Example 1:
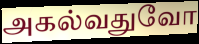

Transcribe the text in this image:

அகல்வதுவோ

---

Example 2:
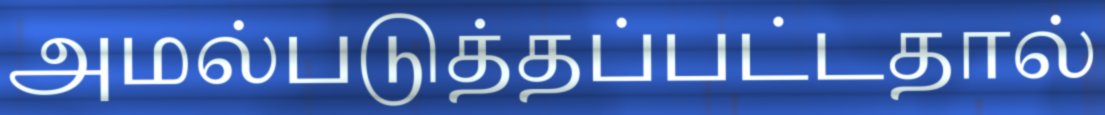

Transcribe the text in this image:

அமல்படுத்தப்பட்டதால்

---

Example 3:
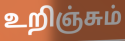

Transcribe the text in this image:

உறிஞ்சும்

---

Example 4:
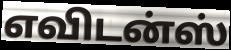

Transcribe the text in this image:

எவிடன்ஸ்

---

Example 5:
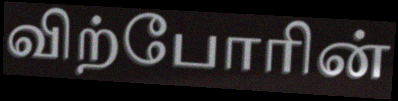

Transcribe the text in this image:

விற்போரின்